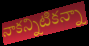
నాకన్నిటికన్నా